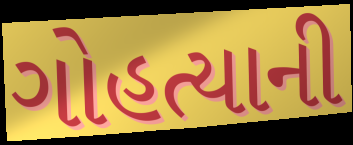
ગોહત્યાની